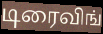
டிரைவிங்